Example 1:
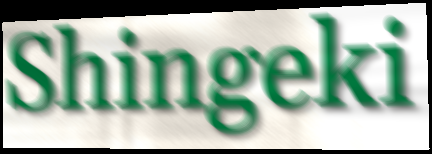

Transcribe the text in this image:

Shingeki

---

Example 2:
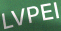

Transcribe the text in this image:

LVPEI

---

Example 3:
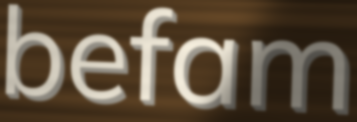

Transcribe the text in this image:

befam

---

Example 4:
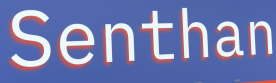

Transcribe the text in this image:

Senthan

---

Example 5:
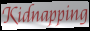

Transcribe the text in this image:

Kidnapping